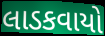
લાડકવાયો